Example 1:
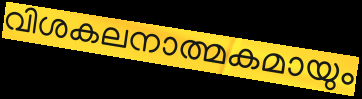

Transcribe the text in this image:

വിശകലനാത്മകമായും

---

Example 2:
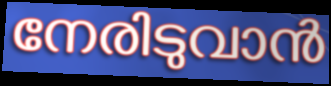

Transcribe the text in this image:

നേരിടുവാൻ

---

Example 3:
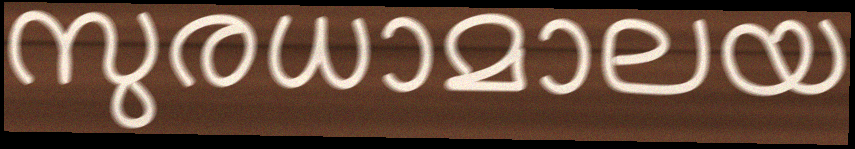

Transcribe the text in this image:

സുരധാമാലയ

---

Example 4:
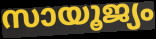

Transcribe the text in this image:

സായൂജ്യം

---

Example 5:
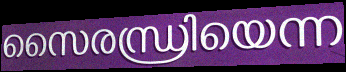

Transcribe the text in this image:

സൈരന്ധ്രിയെന്ന